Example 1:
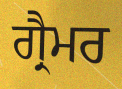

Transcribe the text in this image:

ਗ੍ਰੈਮਰ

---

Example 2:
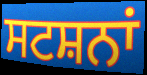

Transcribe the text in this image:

ਸਟਸ਼ਨਾਂ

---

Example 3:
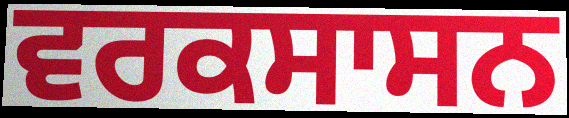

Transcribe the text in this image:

ਵਰਕਸਾਸਨ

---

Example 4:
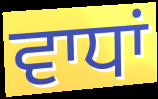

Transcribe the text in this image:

ਵਾਧਾਂ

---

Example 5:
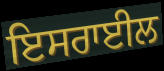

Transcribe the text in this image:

ਇਸਰਾਈਲ